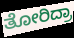
ತೋರಿದ್ರಾ